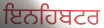
ਇਨਹਿਬਟਰ